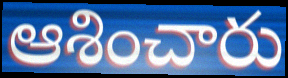
ఆశించారు